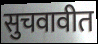
सुचवावीत